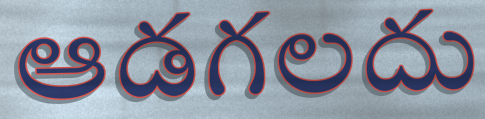
ఆడగలదు